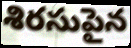
శిరసుపైన